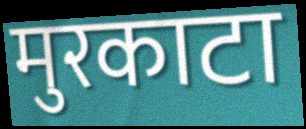
मुरकाटा